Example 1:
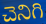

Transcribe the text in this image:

చెనిగి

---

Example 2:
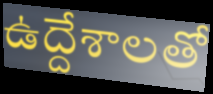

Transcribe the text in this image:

ఉద్దేశాలతో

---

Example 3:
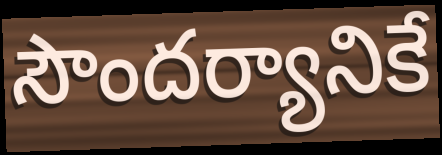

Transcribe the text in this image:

సౌందర్యానికే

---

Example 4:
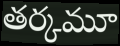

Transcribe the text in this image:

తర్కమూ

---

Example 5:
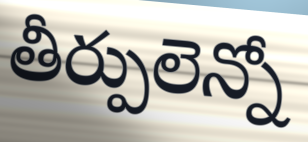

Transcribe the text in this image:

తీర్పులెన్నో